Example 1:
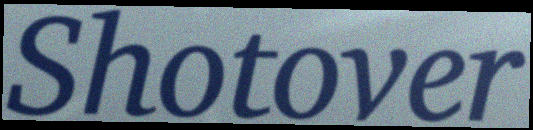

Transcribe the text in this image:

Shotover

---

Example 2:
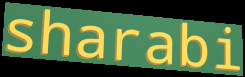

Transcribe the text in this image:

sharabi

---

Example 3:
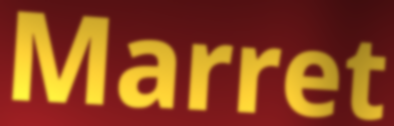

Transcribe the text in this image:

Marret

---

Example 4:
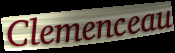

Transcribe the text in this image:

Clemenceau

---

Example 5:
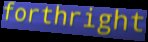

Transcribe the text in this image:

forthright